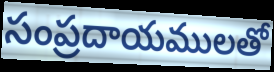
సంప్రదాయములతో